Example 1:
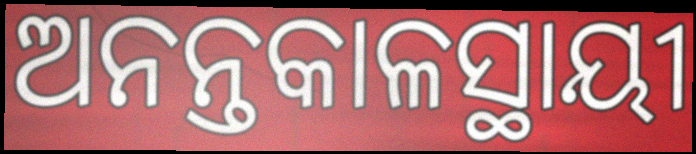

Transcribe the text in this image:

ଅନନ୍ତକାଳସ୍ଥାୟୀ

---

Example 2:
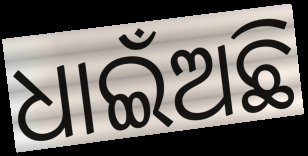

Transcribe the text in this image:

ଧାଇଁଅଛି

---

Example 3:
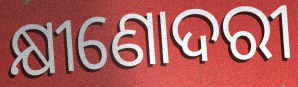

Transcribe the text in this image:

କ୍ଷୀଣୋଦରୀ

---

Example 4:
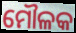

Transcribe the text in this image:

ମୌଳକ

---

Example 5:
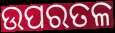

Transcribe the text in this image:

ଉପରତଳ